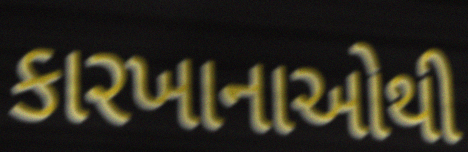
કારખાનાઓથી